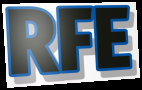
RFE